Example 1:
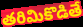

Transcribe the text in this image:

తరిమికొడితే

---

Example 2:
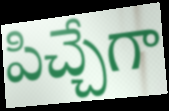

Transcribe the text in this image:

పిచ్చేగా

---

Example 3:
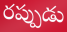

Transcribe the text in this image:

రప్పుడు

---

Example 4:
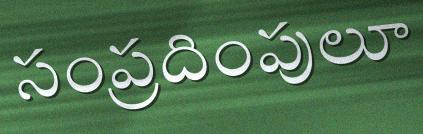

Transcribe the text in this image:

సంప్రదింపులూ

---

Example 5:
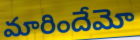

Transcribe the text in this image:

మారిందేమో